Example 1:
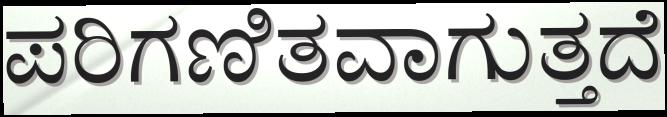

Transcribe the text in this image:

ಪರಿಗಣಿತವಾಗುತ್ತದೆ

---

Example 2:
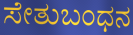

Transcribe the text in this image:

ಸೇತುಬಂಧನ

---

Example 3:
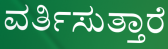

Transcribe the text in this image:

ವರ್ತಿಸುತ್ತಾರೆ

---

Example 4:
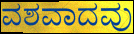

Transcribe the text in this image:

ವಶವಾದವು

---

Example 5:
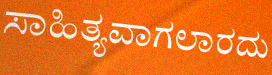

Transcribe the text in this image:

ಸಾಹಿತ್ಯವಾಗಲಾರದು